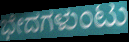
ಭೇದಗಳುಂಟು